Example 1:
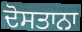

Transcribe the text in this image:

ਦੋਸਤਾਨਾ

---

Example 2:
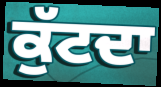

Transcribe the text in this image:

ਕੁੱਟਦਾ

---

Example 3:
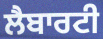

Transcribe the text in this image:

ਲੈਬਾਰਟੀ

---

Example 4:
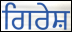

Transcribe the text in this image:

ਗਿਰੇਸ਼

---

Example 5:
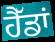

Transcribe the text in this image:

ਹੈੱਡਾਂ